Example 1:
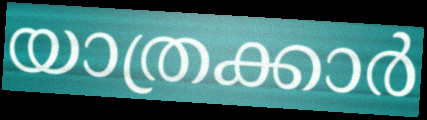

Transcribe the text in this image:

യാത്രക്കാർ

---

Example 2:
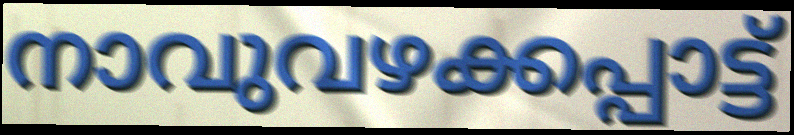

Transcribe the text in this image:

നാവുവഴക്കപ്പാട്ട്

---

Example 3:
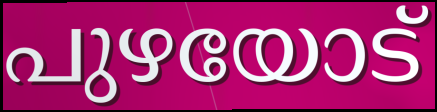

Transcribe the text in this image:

പുഴയോട്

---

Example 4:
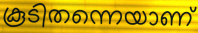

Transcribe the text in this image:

കൂടിതന്നെയാണ്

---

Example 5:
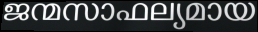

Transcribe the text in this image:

ജന്മസാഫല്യമായ